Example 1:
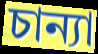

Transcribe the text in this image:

চান্যা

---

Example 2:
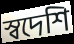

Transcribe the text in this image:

স্বদেশি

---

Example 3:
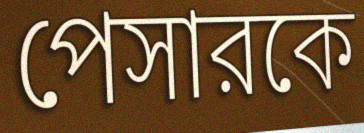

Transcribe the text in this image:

পেসারকে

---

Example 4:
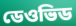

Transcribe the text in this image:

ডেওভিড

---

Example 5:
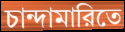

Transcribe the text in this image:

চান্দামারিতে